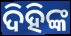
ଦିହିଙ୍କ